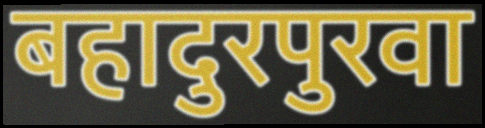
बहादुरपुरवा